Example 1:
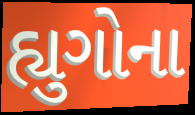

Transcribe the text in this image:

હ્યુગોના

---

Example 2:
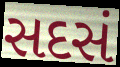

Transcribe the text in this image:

સદસં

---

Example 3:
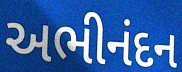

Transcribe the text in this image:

અભીનંદન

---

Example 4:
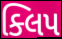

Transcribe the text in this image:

ક્લિપ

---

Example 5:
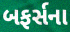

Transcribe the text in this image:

બફર્સના